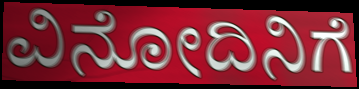
ವಿನೋದಿನಿಗೆ